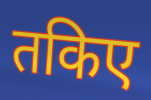
तकिए